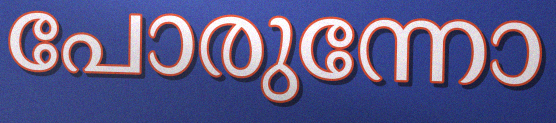
പോരുന്നോ